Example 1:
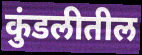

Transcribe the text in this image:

कुंडलीतील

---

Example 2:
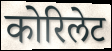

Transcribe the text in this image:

कोरिलेट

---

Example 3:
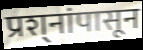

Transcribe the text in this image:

प्रश्नांपासून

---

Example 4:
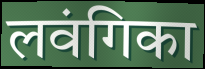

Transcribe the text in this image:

लवंगिका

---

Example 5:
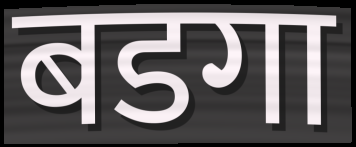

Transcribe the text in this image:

बडगा